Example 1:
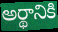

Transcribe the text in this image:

అర్థానికి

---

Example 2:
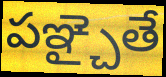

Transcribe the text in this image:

పఞ్చైతే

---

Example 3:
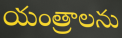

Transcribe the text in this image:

యంత్రాలను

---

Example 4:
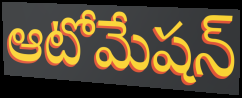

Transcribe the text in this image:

ఆటోమేషన్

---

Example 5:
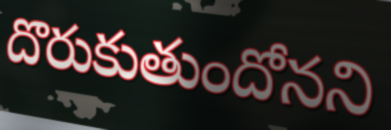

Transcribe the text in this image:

దొరుకుతుందోనని